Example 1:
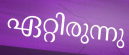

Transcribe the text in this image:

ഏറ്റിരുന്നു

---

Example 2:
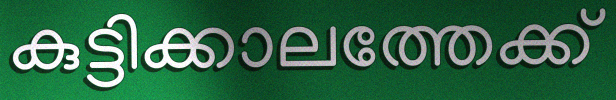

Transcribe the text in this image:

കുട്ടിക്കാലത്തേക്ക്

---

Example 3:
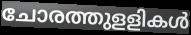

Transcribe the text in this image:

ചോരത്തുളളികൾ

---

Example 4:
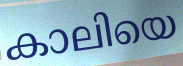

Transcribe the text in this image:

കാലിയെ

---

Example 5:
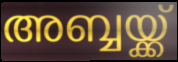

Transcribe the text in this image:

അബ്ബയ്ക്ക്